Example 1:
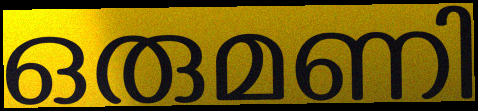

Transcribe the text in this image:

ഒരുമണി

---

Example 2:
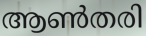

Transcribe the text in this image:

ആൺതരി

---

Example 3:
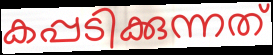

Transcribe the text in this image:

കപ്പടിക്കുന്നത്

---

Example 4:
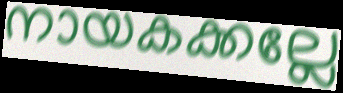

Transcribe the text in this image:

നായകക്കല്ലേ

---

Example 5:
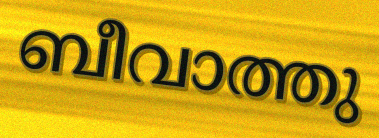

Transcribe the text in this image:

ബീവാത്തു